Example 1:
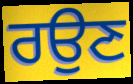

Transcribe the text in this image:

ਰਉਣ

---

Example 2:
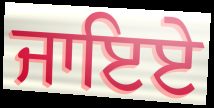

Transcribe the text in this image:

ਜਾਇਏ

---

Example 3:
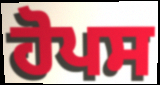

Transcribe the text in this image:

ਹੋਪਸ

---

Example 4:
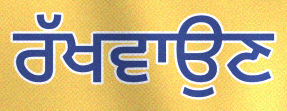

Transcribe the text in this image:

ਰੱਖਵਾਉਣ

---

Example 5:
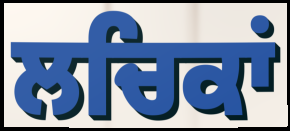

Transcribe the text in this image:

ਲਚਿਕਾਂ